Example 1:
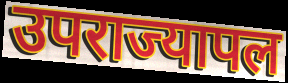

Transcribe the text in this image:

उपराज्यापल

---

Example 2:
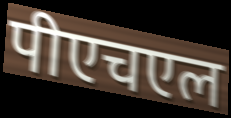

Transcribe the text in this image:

पीएचएल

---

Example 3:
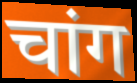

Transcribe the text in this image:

चांग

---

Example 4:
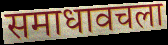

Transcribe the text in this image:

समाधावचला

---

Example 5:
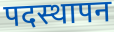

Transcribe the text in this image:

पदस्थापन